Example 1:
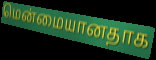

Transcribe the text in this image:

மென்மையானதாக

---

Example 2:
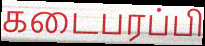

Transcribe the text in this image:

கடைபரப்பி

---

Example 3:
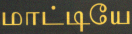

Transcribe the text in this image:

மாட்டியே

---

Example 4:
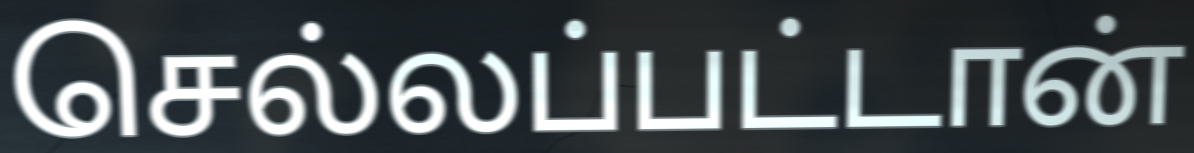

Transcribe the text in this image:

செல்லப்பட்டான்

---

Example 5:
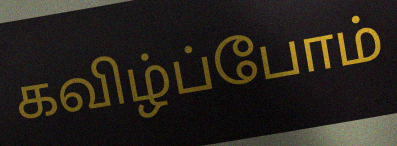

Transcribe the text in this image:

கவிழ்ப்போம்